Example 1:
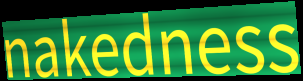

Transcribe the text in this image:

nakedness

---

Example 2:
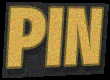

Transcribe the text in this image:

PIN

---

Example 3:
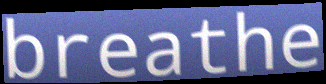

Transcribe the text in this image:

breathe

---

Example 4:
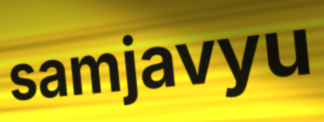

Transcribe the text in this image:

samjavyu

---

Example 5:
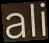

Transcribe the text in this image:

ali